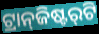
ଟ୍ରାନ୍‌ଜିଷ୍ଟର୍‌ଟି